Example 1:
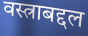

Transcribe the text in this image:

वस्त्राबद्दल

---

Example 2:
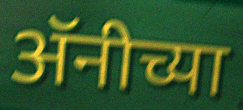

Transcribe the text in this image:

ॲनीच्या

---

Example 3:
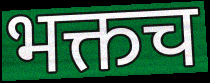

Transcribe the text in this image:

भक्तच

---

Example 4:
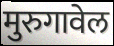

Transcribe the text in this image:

मुरुगावेल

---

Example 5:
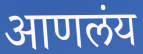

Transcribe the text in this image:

आणलंय